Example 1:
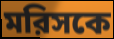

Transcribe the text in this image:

মরিসকে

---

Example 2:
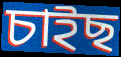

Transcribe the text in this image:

চাইছ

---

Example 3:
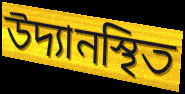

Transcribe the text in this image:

উদ্যানস্থিত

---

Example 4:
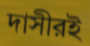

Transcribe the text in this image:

দাসীরই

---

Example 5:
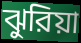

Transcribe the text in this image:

ঝুরিয়া